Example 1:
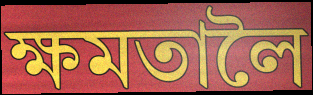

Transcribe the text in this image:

ক্ষমতালৈ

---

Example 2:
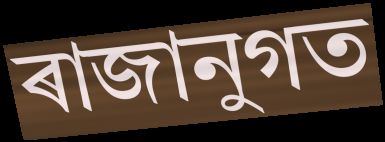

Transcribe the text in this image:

ৰাজানুগত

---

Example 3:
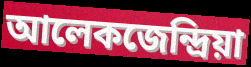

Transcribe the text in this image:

আলেকজেন্দ্ৰিয়া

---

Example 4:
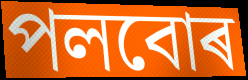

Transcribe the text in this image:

পলবোৰ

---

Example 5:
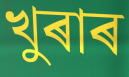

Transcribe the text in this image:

খুৰাৰ